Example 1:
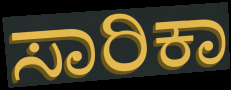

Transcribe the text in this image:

ಸಾರಿಕಾ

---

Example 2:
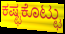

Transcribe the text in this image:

ಕಷ್ಟಕೊಟ್ಟು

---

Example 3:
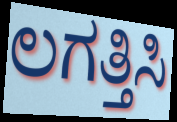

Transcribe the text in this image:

ಲಗತ್ತಿಸಿ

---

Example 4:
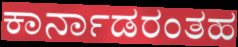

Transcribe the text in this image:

ಕಾರ್ನಾಡರಂತಹ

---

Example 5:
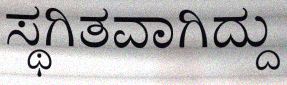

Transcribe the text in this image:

ಸ್ಥಗಿತವಾಗಿದ್ದು